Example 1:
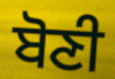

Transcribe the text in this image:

ਬੋਣੀ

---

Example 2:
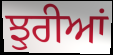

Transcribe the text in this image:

ਝੁਰੀਆਂ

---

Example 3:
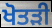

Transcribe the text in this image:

ਖੋਤੜੀ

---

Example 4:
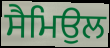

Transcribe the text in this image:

ਸੈਮਿਉਲ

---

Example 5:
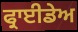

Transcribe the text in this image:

ਫ੍ਰਾਈਡੇਅ